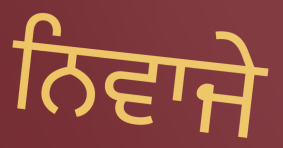
ਨਿਵਾਜੇ